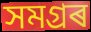
সমগ্ৰৰ